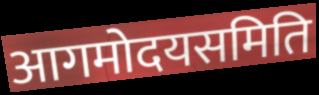
आगमोदयसमिति